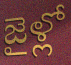
జైళ్లో